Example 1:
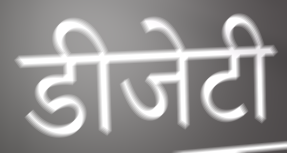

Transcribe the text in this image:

डीजेटी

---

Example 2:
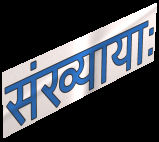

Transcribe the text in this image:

संख्यायाः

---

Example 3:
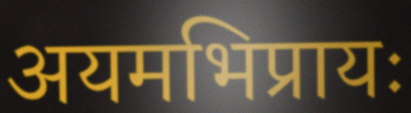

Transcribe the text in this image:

अयमभिप्रायः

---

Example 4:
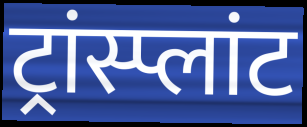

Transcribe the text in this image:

ट्रांस्प्लांट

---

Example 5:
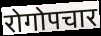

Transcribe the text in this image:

रोगोपचार